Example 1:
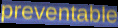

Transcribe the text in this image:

preventable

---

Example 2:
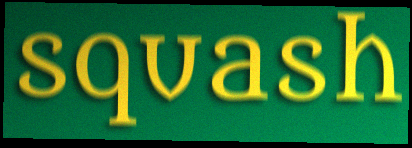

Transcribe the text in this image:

squash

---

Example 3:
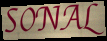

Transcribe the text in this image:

SONAL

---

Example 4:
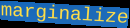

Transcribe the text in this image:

marginalize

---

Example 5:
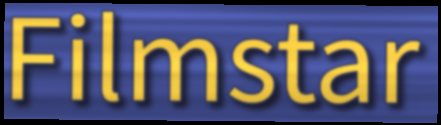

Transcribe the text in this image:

Filmstar